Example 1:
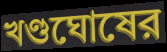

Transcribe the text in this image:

খণ্ডঘোষের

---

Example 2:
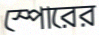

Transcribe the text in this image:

স্পোরের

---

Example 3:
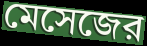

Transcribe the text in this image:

মেসেজের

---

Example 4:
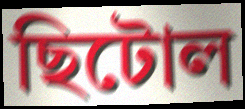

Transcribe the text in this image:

ছিটোল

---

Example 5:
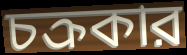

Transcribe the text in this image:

চক্রকার